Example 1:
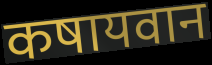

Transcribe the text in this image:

कषायवान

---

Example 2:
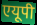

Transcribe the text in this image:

एयूपी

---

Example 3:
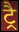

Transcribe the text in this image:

ट्रै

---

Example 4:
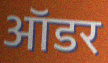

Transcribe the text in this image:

ऑडर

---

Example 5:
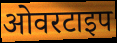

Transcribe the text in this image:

ओवरटाइप